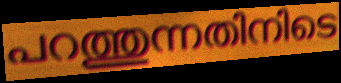
പറത്തുന്നതിനിടെ